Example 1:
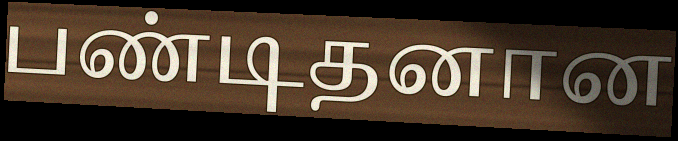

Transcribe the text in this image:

பண்டிதனான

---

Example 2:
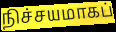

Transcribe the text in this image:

நிச்சயமாகப்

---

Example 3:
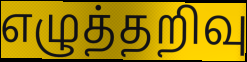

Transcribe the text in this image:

எழுத்தறிவு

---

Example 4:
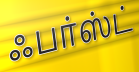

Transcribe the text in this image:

ஃபர்ஸ்ட்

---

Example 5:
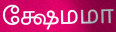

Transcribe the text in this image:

க்ஷேமமா